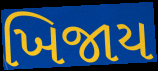
ખિજાય